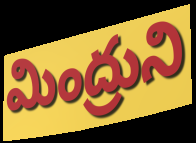
మింద్రుని